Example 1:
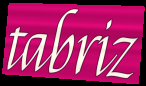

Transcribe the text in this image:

tabriz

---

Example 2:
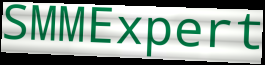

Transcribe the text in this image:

SMMExpert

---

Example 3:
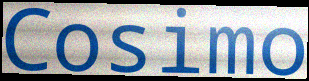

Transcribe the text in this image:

Cosimo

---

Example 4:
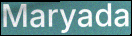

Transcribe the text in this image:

Maryada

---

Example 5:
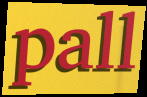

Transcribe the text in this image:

pall